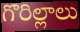
గొరిల్లాలు